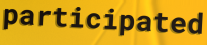
participated